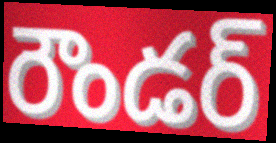
రౌండర్